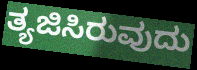
ತ್ಯಜಿಸಿರುವುದು